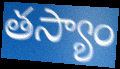
తస్యాం